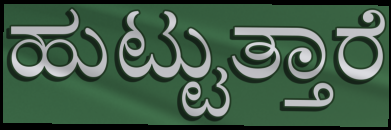
ಹುಟ್ಟುತ್ತಾರೆ